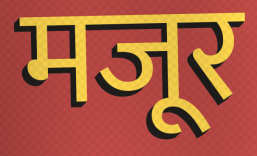
मजूर